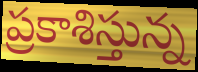
ప్రకాశిస్తున్న